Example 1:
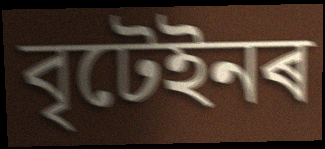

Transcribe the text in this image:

বৃটেইনৰ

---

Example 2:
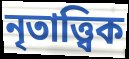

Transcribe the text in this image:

নৃতাত্ত্বিক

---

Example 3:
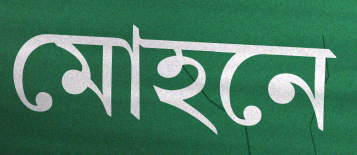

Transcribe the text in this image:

মোহনে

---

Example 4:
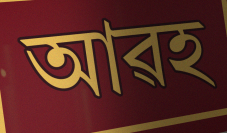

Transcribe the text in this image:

আৱহ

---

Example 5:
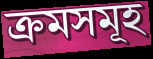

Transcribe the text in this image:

ক্ৰমসমূহ